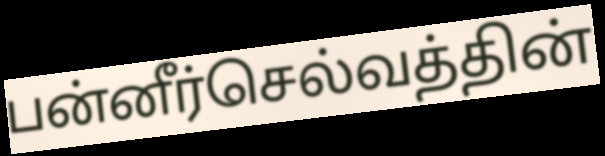
பன்னீர்செல்வத்தின்